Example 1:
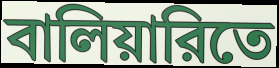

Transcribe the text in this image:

বালিয়ারিতে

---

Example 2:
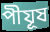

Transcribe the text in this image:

পীযূষ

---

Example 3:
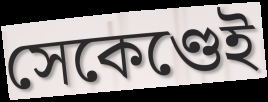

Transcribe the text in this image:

সেকেণ্ডেই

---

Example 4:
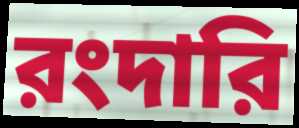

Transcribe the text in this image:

রংদারি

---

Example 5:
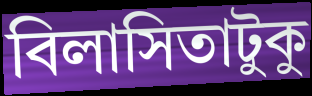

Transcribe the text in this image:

বিলাসিতাটুকু